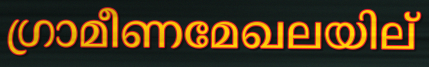
ഗ്രാമീണമേഖലയില്